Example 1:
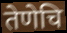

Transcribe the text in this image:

तेणेचि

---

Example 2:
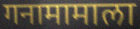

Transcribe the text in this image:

गनामामाला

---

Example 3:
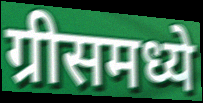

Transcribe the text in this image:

ग्रीसमध्ये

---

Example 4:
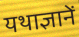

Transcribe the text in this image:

यथाज्ञानें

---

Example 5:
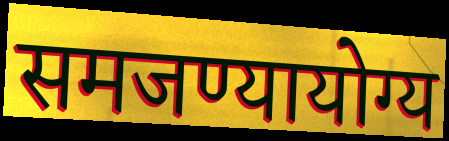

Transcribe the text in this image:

समजण्यायोग्य